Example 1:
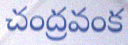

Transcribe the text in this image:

చంద్రవంక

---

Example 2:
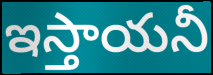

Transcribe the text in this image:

ఇస్తాయనీ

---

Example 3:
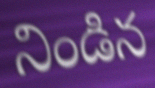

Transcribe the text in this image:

నిండిన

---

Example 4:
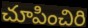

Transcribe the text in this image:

చూపించిరి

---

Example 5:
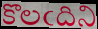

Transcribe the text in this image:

కొలఁదిని